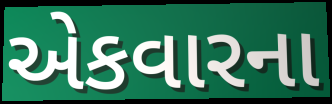
એકવારના